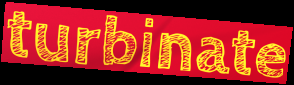
turbinate